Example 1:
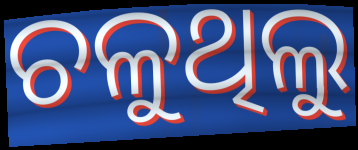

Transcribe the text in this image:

ଚଳୁଥିଲୁ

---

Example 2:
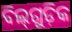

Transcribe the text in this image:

ବିଲ୍‌ଗୁଡ଼ିକ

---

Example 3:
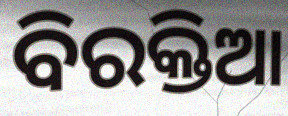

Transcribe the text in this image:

ବିରକ୍ତିଆ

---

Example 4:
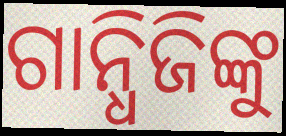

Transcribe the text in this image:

ଗାନ୍ଧିଜିଙ୍କୁ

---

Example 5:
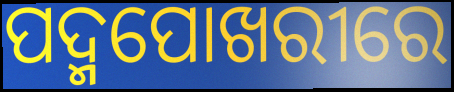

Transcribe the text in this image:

ପଦ୍ମପୋଖରୀରେ